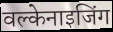
वल्केनाइजिंग